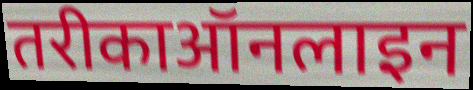
तरीकाऑनलाइन